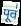
पूव॑